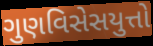
ગુણવિસેસયુત્તો